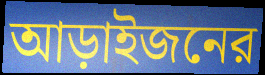
আড়াইজনের